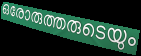
ഒരോരുത്തരുടെയും